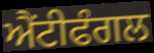
ਐਂਟੀਫੰਗਲ